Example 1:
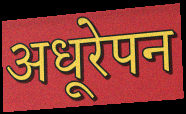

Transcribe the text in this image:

अधूरेपन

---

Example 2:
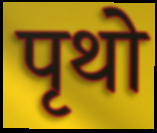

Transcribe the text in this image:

पृथो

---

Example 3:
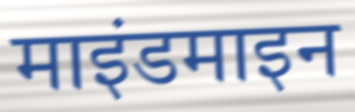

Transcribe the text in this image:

माइंडमाइन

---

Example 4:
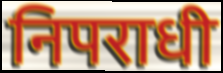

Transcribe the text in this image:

निपराधी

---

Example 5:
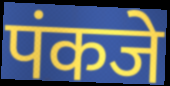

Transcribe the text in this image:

पंकजे